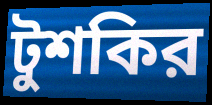
টুশকির